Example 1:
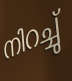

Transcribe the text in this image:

നിറച്ചു്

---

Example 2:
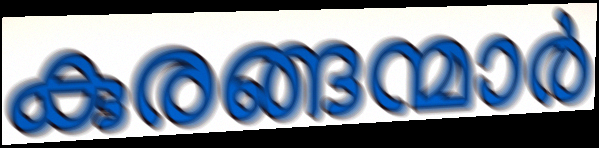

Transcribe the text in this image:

കുരങ്ങന്മാർ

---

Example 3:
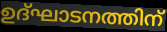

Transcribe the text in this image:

ഉദ്ഘാടനത്തിന്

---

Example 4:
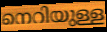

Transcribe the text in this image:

നെറിയുള്ള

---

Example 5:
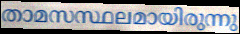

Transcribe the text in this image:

താമസസ്ഥലമായിരുന്നു